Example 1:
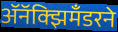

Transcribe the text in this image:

ॲनॅक्झिमँडरने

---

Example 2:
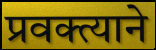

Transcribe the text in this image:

प्रवक्त्याने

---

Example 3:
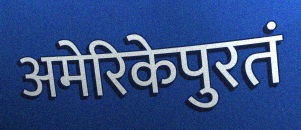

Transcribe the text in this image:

अमेरिकेपुरतं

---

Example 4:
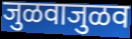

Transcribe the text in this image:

जुळवाजुळव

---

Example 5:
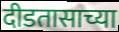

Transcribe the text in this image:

दीडतासाच्या